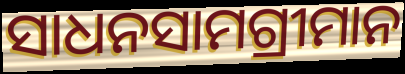
ସାଧନସାମଗ୍ରୀମାନ